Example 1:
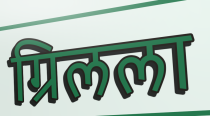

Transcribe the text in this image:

ग्रिलला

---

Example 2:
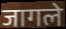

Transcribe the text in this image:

जागले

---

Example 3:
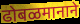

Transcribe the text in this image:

ढोबळमानाने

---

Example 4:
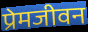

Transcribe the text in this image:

प्रेमजीवन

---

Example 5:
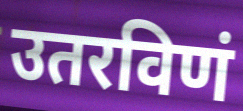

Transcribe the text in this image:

उतरविणं